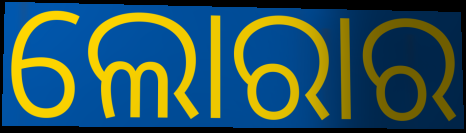
ଲୋରାର